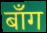
बाँग